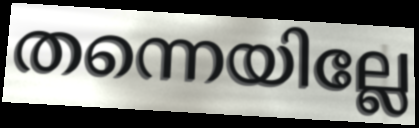
തന്നെയില്ലേ